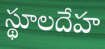
స్థూలదేహ